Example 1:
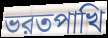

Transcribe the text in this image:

ভরতপাখি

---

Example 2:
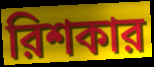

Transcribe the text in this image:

রিশকার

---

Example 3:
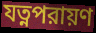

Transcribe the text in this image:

যত্নপরায়ণ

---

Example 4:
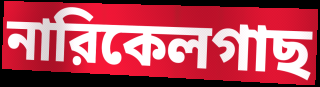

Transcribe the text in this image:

নারিকেলগাছ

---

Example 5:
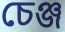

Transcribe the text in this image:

চেঞ্জ